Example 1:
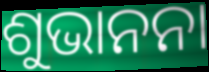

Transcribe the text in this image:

ଶୁଭାନନା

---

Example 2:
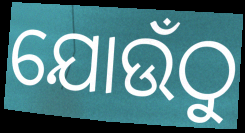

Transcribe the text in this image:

ଯୋଉଁଠୁ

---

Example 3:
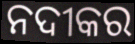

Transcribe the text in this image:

ନଦୀକର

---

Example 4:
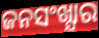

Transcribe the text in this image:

ଜନସଂଖ୍ଯାର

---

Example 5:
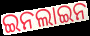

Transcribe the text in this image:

ଇନଲାଇନ